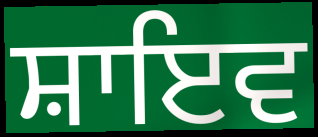
ਸ਼ਾਇਵ